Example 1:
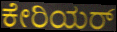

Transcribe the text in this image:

ಕೇರಿಯರ್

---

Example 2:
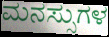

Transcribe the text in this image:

ಮನಸ್ಸುಗಳ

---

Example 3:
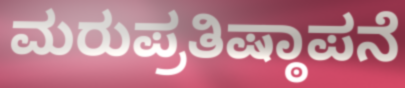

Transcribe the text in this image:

ಮರುಪ್ರತಿಷ್ಠಾಪನೆ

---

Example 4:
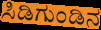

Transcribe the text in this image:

ಸಿಡಿಗುಂಡಿನ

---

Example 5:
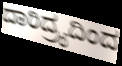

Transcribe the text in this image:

ದಾರಿದ್ರ್ಯದಿಂದ